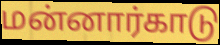
மன்னார்காடு